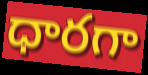
ధారగా